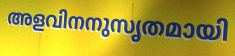
അളവിനനുസൃതമായി